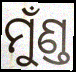
ମୁଁଣ୍ଡ